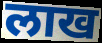
लाख